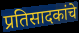
प्रतिसादकांचे